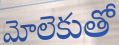
మోలెకుతో